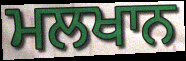
ਮਲਖਾਨ